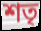
শতৃ